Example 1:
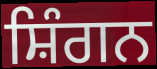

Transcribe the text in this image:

ਸ਼ਿੰਗਨ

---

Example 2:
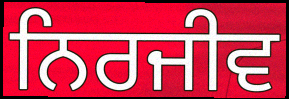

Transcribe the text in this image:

ਨਿਰਜੀਵ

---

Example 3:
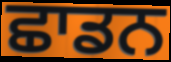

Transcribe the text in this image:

ਛਾਡਨ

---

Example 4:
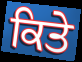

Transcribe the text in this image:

ਕਿਤੇ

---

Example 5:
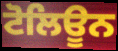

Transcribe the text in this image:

ਟੋਲਿਊਨ